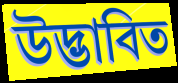
উদ্ভাবিত